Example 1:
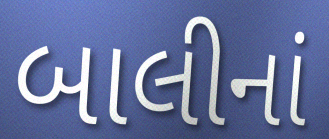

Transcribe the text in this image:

બાલીનાં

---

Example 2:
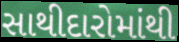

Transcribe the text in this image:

સાથીદારોમાંથી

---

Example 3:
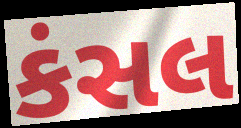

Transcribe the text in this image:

કંસલ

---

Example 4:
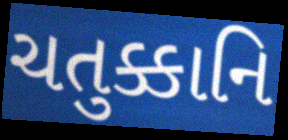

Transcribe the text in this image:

ચતુક્કાનિ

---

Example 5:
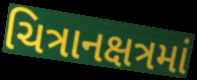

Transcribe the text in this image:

ચિત્રાનક્ષત્રમાં